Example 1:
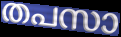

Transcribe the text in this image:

തപസാ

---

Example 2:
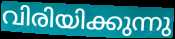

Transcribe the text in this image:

വിരിയിക്കുന്നു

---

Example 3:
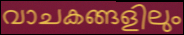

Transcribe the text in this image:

വാചകങ്ങളിലും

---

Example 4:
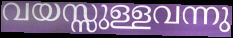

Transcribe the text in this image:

വയസ്സുള്ളവന്നു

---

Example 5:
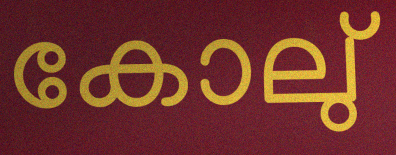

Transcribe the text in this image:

കോലു്